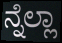
ನ್ನೆಲ್ಲಾ